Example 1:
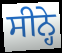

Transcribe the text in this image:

ਸੀਨ੍ਹੇ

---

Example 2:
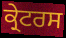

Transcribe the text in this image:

ਕ੍ਰੇਟਰਸ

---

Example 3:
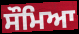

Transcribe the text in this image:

ਸੌਮਿਆ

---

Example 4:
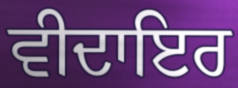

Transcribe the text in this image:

ਵੀਦਾਇਰ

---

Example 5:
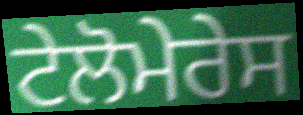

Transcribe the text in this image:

ਟੇਲੋਮੇਰੇਸ